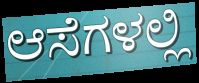
ಆಸೆಗಳಲ್ಲಿ